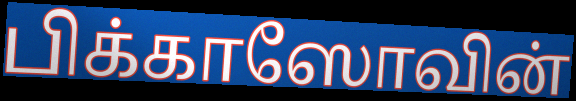
பிக்காஸோவின்